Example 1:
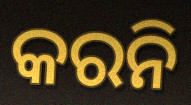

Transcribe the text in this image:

କରନି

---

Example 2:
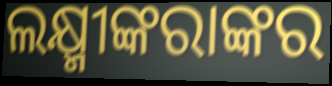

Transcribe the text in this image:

ଲକ୍ଷ୍ମୀଙ୍କରାଙ୍କର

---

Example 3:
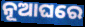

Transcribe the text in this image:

ନୂଆଘରେ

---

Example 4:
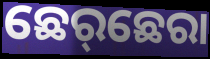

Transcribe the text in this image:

ଛେର୍‌ଛେରା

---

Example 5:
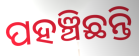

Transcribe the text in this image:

ପହଞ୍ଚିଛନ୍ତି